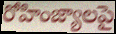
రోహింజ్యాలపై